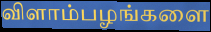
விளாம்பழங்களை